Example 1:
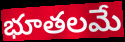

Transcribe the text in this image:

భూతలమే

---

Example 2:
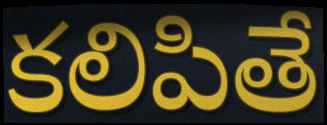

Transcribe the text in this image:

కలిపితే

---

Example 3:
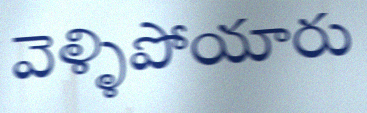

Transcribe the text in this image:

వెళ్ళిపోయారు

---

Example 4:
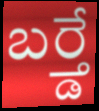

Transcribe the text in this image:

బర్త్డే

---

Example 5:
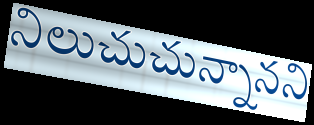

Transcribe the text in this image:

నిలుచుచున్నానని